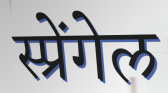
स्प्रेंगेल